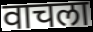
वाचला